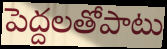
పెద్దలతోపాటు